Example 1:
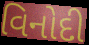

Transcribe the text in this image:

વિનોદી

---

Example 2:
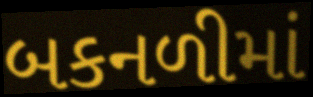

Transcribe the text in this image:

બકનળીમાં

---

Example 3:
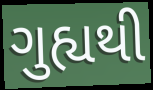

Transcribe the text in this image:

ગુહ્યથી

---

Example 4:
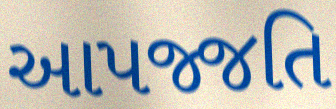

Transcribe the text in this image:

આપજ્જતિ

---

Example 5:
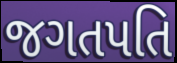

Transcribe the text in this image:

જગતપતિ